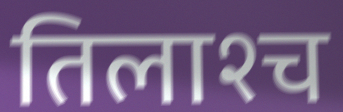
तिलाश्च